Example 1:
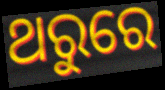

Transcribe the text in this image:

ଥରୁରେ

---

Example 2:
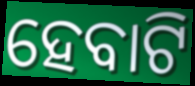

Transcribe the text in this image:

ହେବାଟି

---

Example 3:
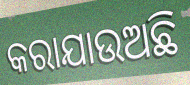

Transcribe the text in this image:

କରାଯାଉଅଛି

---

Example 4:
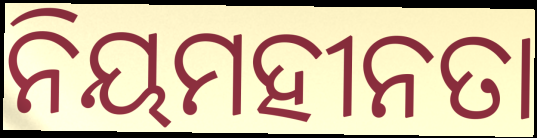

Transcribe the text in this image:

ନିୟମହୀନତା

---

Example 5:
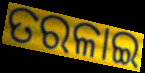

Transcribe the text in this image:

ତରଳାଇ